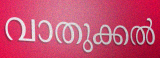
വാതുക്കൽ